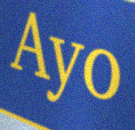
Ayo